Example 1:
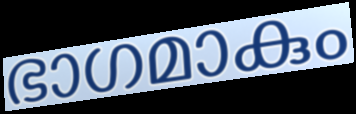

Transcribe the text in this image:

ഭാഗമാകും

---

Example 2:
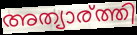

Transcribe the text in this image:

അത്യാര്ത്തി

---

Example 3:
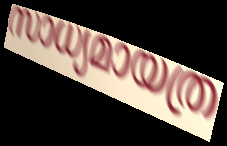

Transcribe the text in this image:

സാധ്യമായത്ര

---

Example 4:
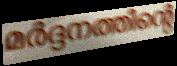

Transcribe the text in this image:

മർദ്ദനത്തിന്റെ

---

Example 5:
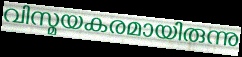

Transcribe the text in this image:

വിസ്മയകരമായിരുന്നു